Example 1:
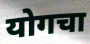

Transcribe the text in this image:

योगचा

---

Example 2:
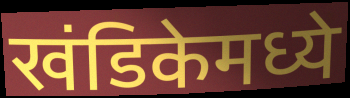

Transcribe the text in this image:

खंडिकेमध्ये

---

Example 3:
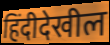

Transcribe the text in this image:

हिंदीदेखील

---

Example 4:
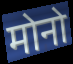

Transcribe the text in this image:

मोनो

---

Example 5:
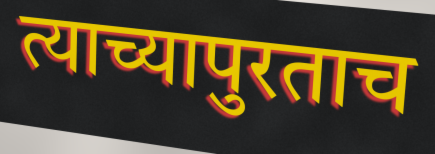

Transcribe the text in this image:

त्याच्यापुरताच